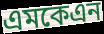
এমকেএন